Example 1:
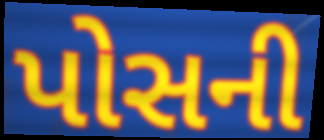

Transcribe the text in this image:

પોસની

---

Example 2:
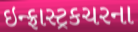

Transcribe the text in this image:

ઇન્ફ્રાસ્ટ્રકચરના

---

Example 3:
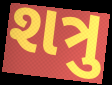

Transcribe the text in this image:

શત્રુ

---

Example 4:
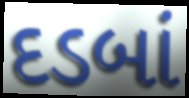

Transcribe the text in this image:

દડબાં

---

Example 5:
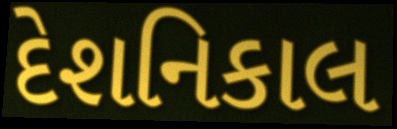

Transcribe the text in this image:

દેશનિકાલ